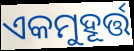
ଏକମୁହୂର୍ତ୍ତ